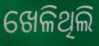
ଖେଳିଥିଲି